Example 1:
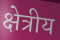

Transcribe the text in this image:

क्षेत्रीय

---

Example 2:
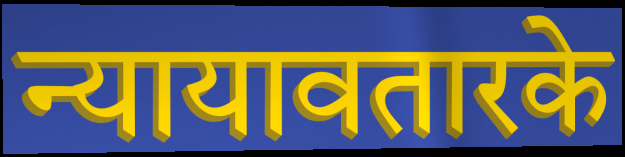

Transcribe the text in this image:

न्यायावतारके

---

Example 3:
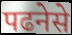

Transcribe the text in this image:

पढनेसे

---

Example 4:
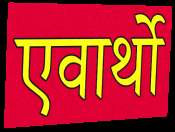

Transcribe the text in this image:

एवार्थो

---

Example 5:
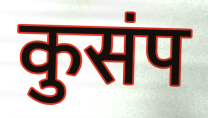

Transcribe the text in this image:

कुसंप